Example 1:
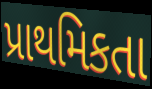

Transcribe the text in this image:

પ્રાથમિકતા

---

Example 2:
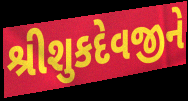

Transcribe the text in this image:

શ્રીશુકદેવજીને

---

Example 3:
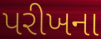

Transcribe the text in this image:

પરીખના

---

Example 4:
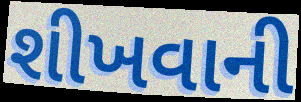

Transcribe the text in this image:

શીખવાની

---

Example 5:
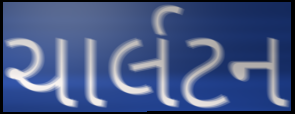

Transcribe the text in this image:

ચાર્લટન